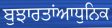
ਬੁਝਾਰਤਾਂਆਧੁਨਿਕ